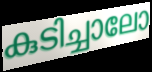
കുടിച്ചാലോ